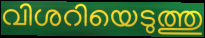
വിശറിയെടുത്തു